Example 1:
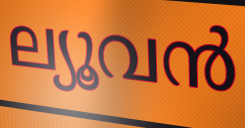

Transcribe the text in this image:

ല്യൂവൻ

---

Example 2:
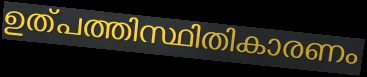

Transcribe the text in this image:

ഉത്പത്തിസ്ഥിതികാരണം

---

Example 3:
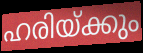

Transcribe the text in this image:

ഹരിയ്ക്കും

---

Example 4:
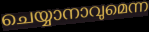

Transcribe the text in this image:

ചെയ്യാനാവുമെന്ന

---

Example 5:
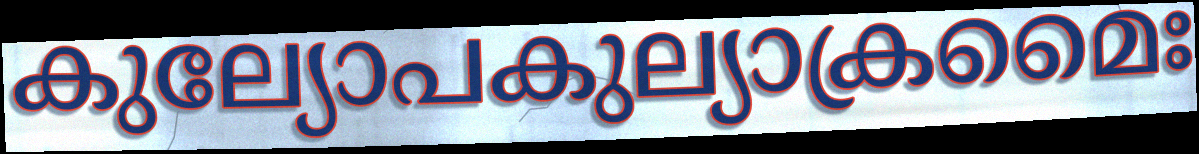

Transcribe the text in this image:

കുല്യോപകുല്യാക്രമൈഃ